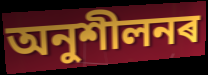
অনুশীলনৰ